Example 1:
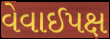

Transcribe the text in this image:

વેવાઈપક્ષ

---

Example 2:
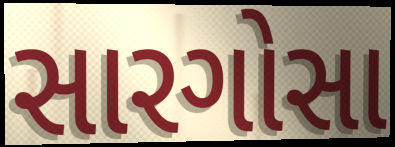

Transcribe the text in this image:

સારગોસા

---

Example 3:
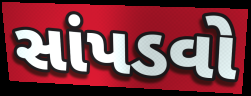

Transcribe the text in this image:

સાંપડવો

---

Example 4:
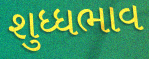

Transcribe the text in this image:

શુધ્ધભાવ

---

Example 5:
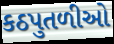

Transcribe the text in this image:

કઠપુતળીઓ